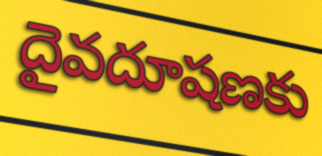
దైవదూషణకు